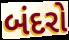
બંદરો